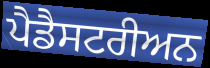
ਪੈਡੈਸਟਰੀਅਨ